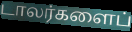
டாலர்களைப்